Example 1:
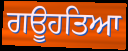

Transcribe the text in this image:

ਗਊਹਤਿਆ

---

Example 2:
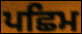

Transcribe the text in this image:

ਪਛਿਮ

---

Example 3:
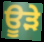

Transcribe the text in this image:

ਊੜੇ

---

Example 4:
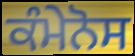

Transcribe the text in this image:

ਕੰਮੇਨੋਸ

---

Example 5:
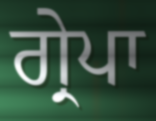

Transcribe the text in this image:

ਗ੍ਰੇਪਾ